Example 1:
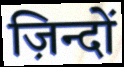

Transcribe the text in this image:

ज़िन्दों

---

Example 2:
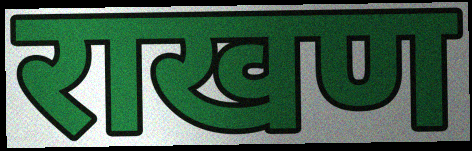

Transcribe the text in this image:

राखण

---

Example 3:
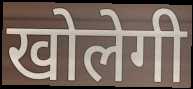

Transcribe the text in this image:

खोलेगी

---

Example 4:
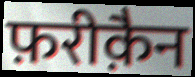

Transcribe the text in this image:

फ़रीक़ैन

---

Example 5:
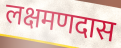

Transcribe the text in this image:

लक्षमणदास